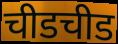
चीडचीड